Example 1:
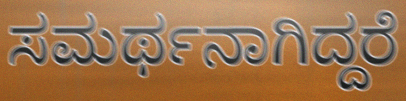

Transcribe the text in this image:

ಸಮರ್ಥನಾಗಿದ್ದರೆ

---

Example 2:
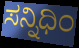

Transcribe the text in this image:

ಸನ್ನಿಧಿಂ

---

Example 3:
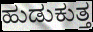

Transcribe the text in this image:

ಹುಡುಕುತ್ತ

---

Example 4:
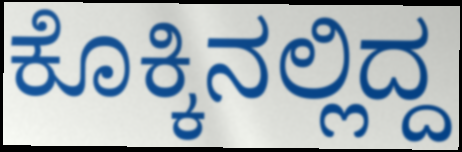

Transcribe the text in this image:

ಕೊಕ್ಕಿನಲ್ಲಿದ್ದ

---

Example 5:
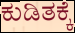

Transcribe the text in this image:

ಕುಡಿತಕ್ಕೆ